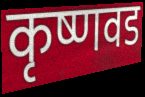
कृष्णवड